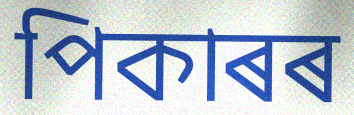
পিকাৰৰ